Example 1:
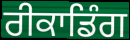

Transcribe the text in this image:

ਰੀਕਾਡਿੰਗ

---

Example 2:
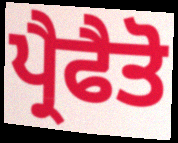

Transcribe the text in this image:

ਪ੍ਰੈਫੈਤੋ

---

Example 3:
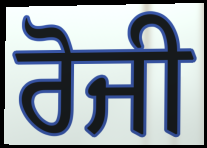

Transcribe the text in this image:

ਰੋਜੀ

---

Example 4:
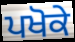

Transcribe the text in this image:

ਪਖੋਕੇ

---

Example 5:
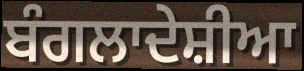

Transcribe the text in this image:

ਬੰਗਲਾਦੇਸ਼ੀਆ